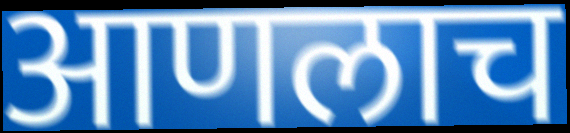
आणलाच